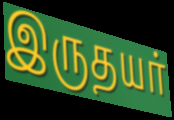
இருதயர்